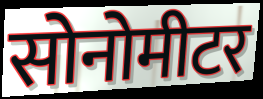
सोनोमीटर